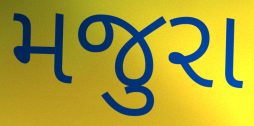
મજુરા